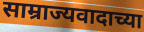
साम्राज्यवादाच्या